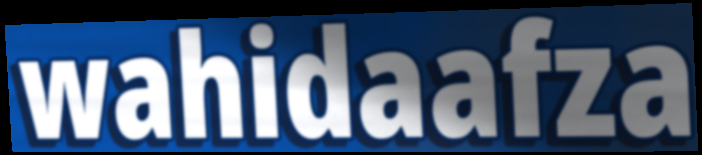
wahidaafza